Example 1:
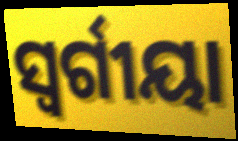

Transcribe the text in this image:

ସ୍ବର୍ଗୀୟା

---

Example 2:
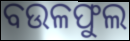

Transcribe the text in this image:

ବଉଳଫୁଲ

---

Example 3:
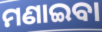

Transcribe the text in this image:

ମଣାଇବା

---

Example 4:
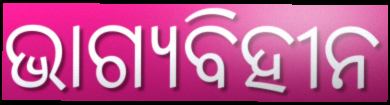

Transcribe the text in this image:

ଭାଗ୍ୟବିହୀନ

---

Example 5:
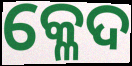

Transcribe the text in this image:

କ୍ଳେଦ